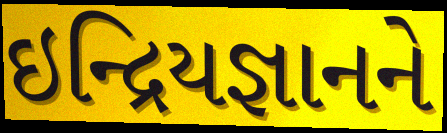
ઇન્દ્રિયજ્ઞાનને